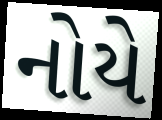
નોયે